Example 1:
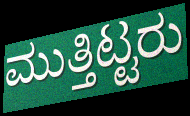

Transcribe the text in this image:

ಮುತ್ತಿಟ್ಟರು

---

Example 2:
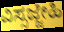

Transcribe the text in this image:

ವಿಸ್ಸಜ್ಜೇಹಿ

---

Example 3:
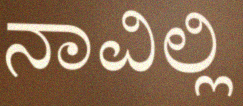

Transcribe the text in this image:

ನಾವಿಲ್ಲಿ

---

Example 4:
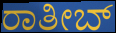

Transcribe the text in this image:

ರಾತೀಬ್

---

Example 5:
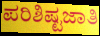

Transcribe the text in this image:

ಪರಿಶಿಷ್ಟಜಾತಿ